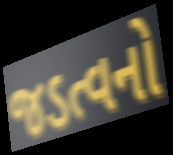
જડત્વનો